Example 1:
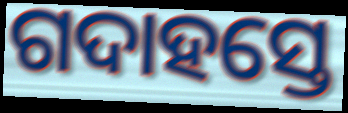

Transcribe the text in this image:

ଗଦାହସ୍ତେ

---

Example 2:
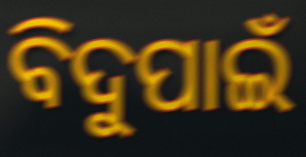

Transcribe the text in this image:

ବିଦୁପାଇଁ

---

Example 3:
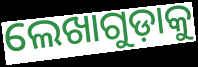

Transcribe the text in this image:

ଲେଖାଗୁଡ଼ାକୁ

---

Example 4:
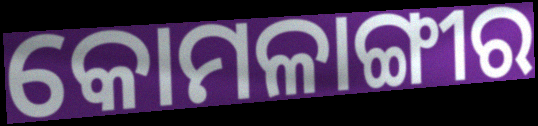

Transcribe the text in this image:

କୋମଳାଙ୍ଗୀର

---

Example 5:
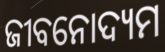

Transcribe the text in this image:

ଜୀବନୋଦ୍ୟମ